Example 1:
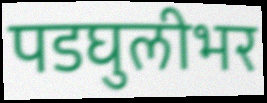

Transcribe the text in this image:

पडघुलीभर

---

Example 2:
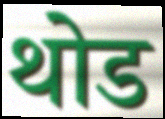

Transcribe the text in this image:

थोड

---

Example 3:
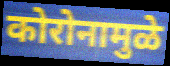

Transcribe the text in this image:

कोरोनामुळे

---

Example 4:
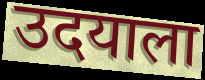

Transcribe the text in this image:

उदयाला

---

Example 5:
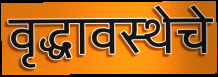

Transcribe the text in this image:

वृद्धावस्थेचे